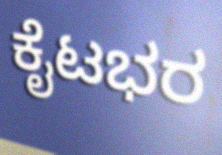
ಕೈಟಭರ